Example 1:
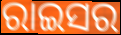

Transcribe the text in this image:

ରାଇସର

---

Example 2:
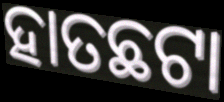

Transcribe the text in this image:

ହାତଛଟା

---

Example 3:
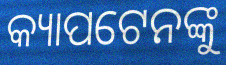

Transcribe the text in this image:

କ୍ୟାପଟେନଙ୍କୁ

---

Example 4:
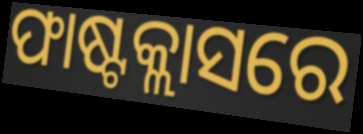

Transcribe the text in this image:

ଫାଷ୍ଟକ୍ଲାସରେ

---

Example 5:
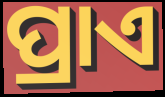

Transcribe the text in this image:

ପ୍ରାଏ